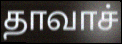
தாவாச்